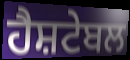
ਹੈਸ਼ਟੇਬਲ